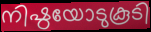
നിഷ്ഠയോടുകൂടി